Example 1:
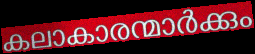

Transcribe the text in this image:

കലാകാരന്മാർക്കും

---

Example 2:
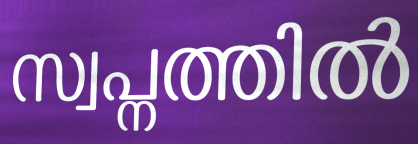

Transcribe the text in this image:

സ്വപ്നത്തിൽ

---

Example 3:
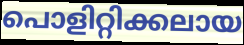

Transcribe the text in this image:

പൊളിറ്റിക്കലായ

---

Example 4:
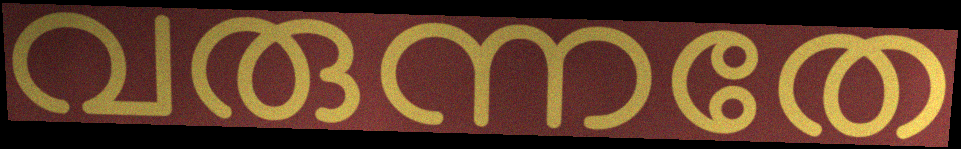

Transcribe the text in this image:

വരുന്നതേ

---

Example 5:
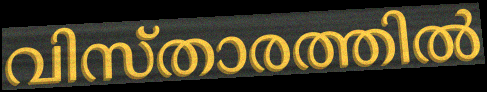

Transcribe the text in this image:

വിസ്താരത്തിൽ